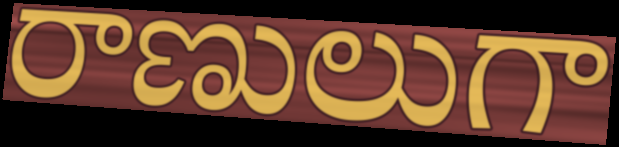
రాణులుగా